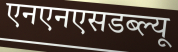
एनएनएसडब्ल्यू